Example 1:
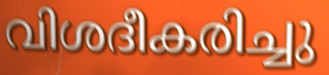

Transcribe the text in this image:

വിശദീകരിച്ചു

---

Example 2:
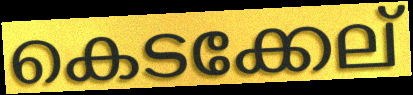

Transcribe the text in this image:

കെടക്കേല്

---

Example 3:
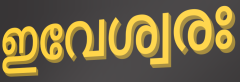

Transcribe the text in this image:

ഇവേശ്വരഃ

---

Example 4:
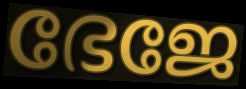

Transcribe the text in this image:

ഭേജേ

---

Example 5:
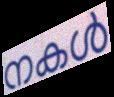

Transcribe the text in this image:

നകൾ